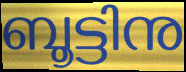
ബൂട്ടിനു